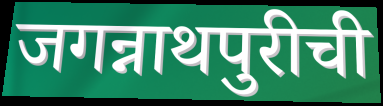
जगन्नाथपुरीची